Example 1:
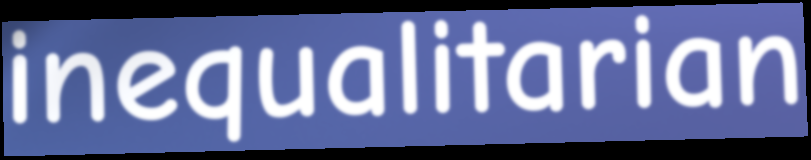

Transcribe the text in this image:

inequalitarian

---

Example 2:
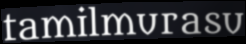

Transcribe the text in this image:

tamilmurasu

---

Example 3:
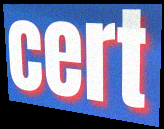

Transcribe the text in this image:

cert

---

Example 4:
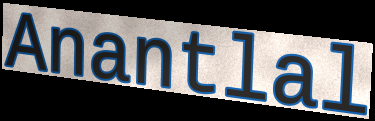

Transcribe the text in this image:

Anantlal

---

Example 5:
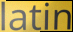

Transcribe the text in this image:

latin